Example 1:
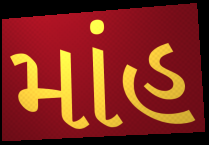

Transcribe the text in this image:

માંહ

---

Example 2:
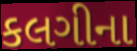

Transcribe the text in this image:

કલગીના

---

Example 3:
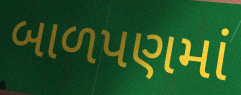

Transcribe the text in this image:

બાળપણમાં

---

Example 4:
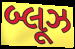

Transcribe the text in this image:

બ્લૂઝ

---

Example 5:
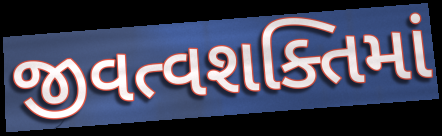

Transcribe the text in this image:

જીવત્વશક્તિમાં